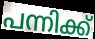
പന്നിക്ക്